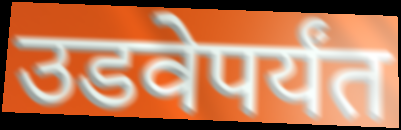
उडवेपर्यंत